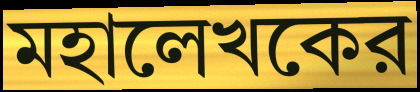
মহালেখকের